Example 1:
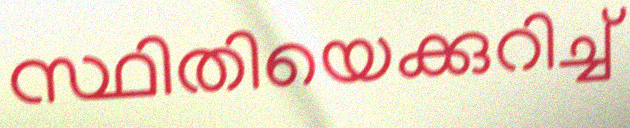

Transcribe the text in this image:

സ്ഥിതിയെക്കുറിച്ച്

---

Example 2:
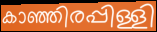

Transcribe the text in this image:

കാഞ്ഞിരപ്പിള്ളി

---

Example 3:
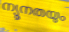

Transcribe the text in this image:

ന്യൂനതയും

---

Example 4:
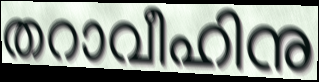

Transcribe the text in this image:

തറാവീഹിനു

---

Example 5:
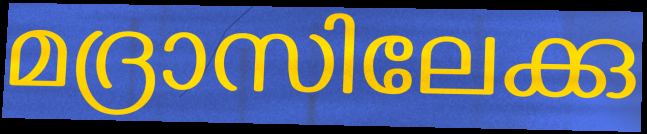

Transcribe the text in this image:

മദ്രാസിലേക്കു